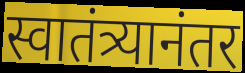
स्वातंत्र्यानंतर